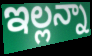
ఇల్లన్నా